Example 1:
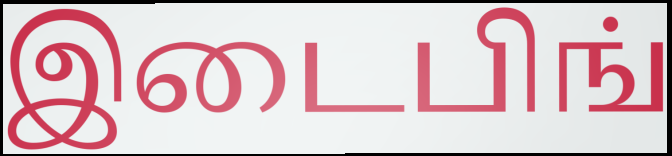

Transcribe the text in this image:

இடைபிங்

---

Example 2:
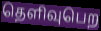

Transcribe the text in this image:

தெளிவுபெற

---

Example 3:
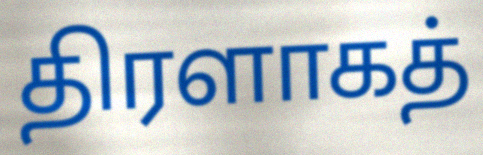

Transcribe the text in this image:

திரளாகத்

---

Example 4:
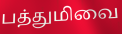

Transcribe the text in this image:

பத்துமிவை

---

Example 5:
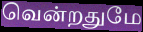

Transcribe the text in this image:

வென்றதுமே